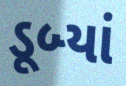
ડૂબ્યાં